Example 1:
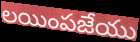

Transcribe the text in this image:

లయింపజేయు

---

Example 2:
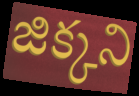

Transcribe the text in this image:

జిక్కని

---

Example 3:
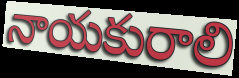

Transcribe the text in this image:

నాయకురాలి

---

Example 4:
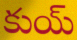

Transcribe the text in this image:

కుయ్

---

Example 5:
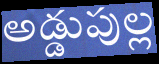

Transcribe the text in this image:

అడ్డుపుల్ల